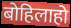
बोहिलाहो